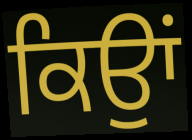
ਕਿਉਾਂ